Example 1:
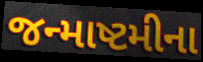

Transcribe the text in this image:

જન્માષ્ટમીના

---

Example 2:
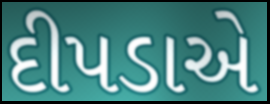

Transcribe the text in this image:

દીપડાએ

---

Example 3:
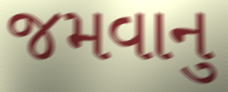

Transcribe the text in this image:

જમવાનુ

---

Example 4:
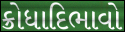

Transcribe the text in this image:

ક્રોધાદિભાવો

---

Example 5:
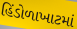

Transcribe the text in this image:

હિંડોળાખાટમાં